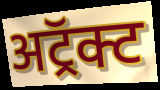
अट्रॅक्ट